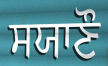
ਸਯਾਣੌ